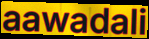
aawadali